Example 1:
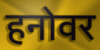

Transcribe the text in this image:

हनोवर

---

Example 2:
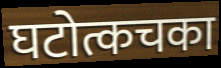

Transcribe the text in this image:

घटोत्कचका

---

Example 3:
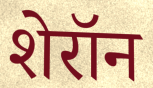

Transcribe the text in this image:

शेरॉन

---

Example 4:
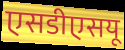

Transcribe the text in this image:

एसडीएसयू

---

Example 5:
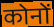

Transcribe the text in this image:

कोनों